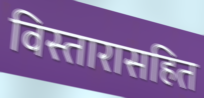
विस्तारासहित